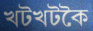
খটখটকৈ